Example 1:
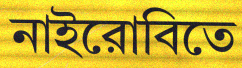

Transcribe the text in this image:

নাইরোবিতে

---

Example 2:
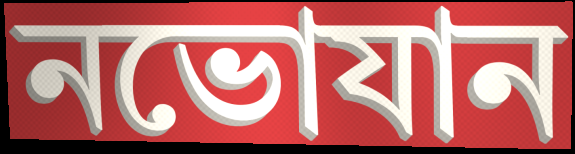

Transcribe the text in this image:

নভোযান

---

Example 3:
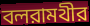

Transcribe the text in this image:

বলরামথীর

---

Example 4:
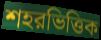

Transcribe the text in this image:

শহরভিত্তিক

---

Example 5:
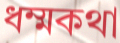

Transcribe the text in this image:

ধম্মকথা